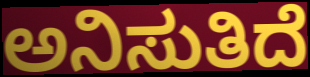
ಅನಿಸುತಿದೆ